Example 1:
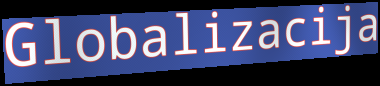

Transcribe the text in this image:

Globalizacija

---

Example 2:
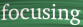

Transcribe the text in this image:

focusing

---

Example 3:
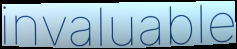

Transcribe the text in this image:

invaluable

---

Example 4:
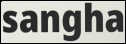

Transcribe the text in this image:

sangha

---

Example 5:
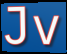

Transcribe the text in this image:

Jv